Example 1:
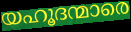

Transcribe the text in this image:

യഹൂദന്മാരെ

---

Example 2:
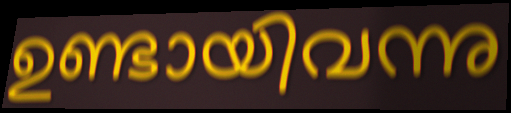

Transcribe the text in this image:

ഉണ്ടായിവന്നു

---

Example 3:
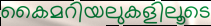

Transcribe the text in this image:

കൈമറിയലുകളിലൂടെ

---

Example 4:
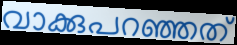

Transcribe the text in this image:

വാക്കുപറഞ്ഞത്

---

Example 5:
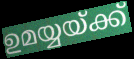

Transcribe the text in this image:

ഉമയ്യയ്ക്ക്